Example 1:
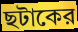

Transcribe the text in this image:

ছটাকের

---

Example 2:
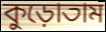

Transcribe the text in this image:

কুড়োতাম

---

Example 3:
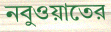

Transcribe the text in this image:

নবুওয়াতের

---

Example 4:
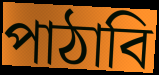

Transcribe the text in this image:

পাঠাবি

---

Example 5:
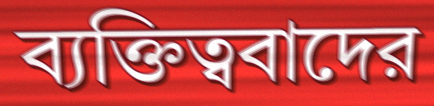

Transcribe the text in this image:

ব্যক্তিত্ববাদের